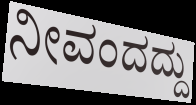
ನೀವಂದದ್ದು